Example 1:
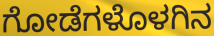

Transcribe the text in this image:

ಗೋಡೆಗಳೊಳಗಿನ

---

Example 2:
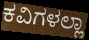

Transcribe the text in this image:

ಕವಿಗಳಲ್ಲಾ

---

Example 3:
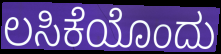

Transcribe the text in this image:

ಲಸಿಕೆಯೊಂದು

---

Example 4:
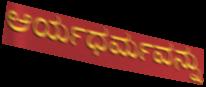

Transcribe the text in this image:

ಆರ್ಯಧರ್ಮವನ್ನು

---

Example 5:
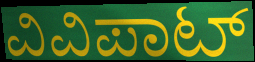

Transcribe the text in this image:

ವಿವಿಪಾಟ್